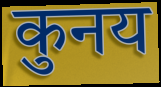
कुनय